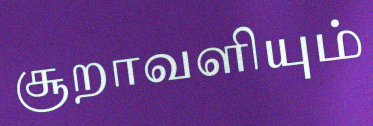
சூறாவளியும்